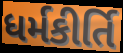
ધર્મકીર્તિ